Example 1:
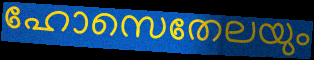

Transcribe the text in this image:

ഹോസെതേലയും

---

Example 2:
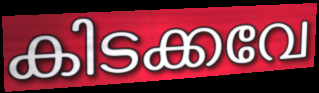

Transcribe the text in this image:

കിടക്കവേ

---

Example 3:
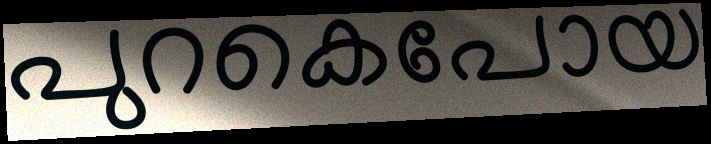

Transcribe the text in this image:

പുറകെപോയ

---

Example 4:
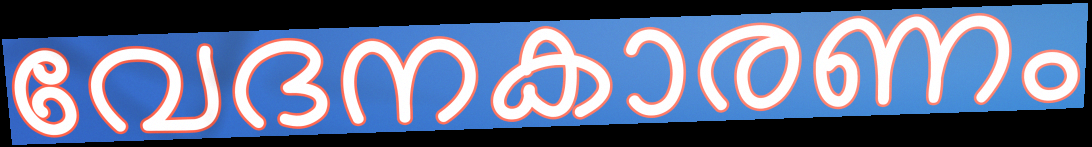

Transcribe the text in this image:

വേദനകാരണം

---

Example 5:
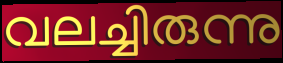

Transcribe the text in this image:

വലച്ചിരുന്നു